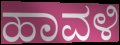
ಹಾವಳಿ